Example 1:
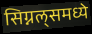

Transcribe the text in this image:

सिग्नल्समध्ये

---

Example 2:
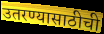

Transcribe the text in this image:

उतरण्यासाठीची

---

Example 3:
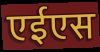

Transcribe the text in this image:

एईएस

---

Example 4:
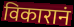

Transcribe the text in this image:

विकारानं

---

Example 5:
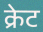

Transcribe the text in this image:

क्रेट